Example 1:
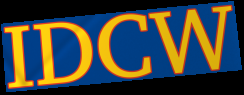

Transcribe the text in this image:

IDCW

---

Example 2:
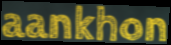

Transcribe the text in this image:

aankhon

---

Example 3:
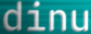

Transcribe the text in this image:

dinu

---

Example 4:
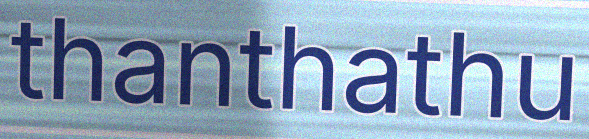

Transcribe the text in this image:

thanthathu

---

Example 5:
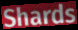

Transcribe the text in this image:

Shards